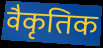
वैकृतिक